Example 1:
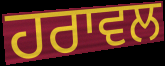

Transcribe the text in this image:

ਹਰਾਵਲ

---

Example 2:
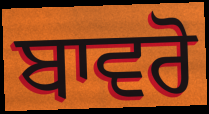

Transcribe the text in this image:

ਬਾਵਰੋ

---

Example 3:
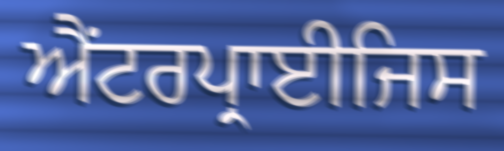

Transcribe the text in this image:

ਐਂਟਰਪ੍ਰਾਈਜਿਸ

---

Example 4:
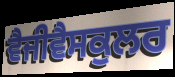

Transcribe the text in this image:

ਵੈਜੀਵੈਸਕੁਲਰ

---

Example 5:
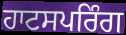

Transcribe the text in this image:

ਹਾਟਸਪਰਿੰਗ